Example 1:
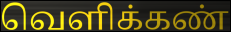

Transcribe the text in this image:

வெளிக்கண்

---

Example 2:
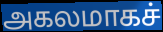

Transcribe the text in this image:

அகலமாகச்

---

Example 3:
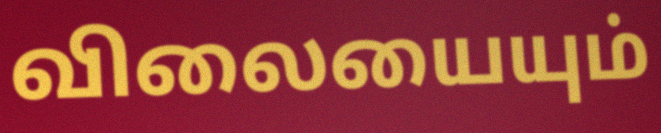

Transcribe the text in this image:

விலையையும்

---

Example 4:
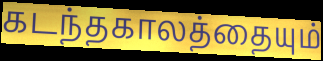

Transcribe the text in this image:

கடந்தகாலத்தையும்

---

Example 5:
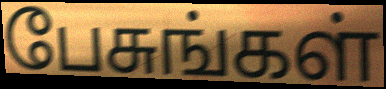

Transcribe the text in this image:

பேசுங்கள்